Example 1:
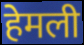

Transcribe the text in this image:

हेमली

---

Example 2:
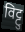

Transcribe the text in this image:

विट्टु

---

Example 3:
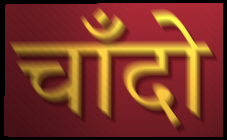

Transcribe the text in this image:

चाँदो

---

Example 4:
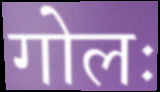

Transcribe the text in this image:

गोलः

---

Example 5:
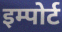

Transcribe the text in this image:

इम्पोर्ट